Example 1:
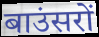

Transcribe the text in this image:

बाउंसरों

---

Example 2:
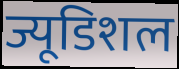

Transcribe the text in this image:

ज्यूडिशल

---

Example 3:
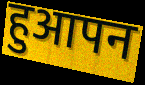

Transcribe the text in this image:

हुआपन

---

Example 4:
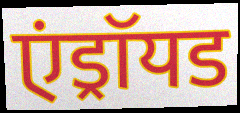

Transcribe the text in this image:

एंड्रॉयड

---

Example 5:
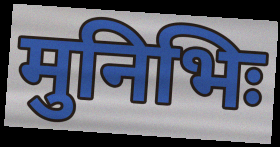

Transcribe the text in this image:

मुनिभिः